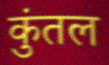
कुंतल